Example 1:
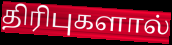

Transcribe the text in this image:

திரிபுகளால்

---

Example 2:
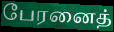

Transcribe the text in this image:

பேரனைத்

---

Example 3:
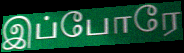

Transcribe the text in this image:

இப்போரே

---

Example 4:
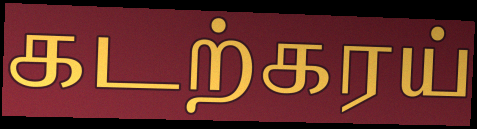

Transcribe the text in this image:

கடற்கரய்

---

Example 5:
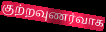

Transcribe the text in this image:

குற்றவுணர்வாக